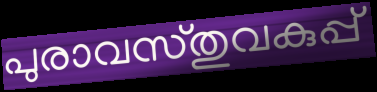
പുരാവസ്തുവകുപ്പ്